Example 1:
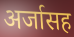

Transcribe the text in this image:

अर्जासह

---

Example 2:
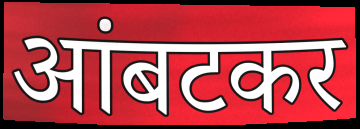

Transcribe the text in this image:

आंबटकर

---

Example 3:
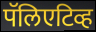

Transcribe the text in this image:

पॅलिएटिव्ह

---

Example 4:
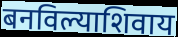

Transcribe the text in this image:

बनविल्याशिवाय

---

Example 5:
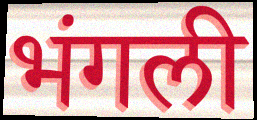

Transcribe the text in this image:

भंगली